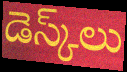
డెస్క్‌లు